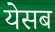
येसब